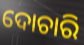
ଦୋଚାରି